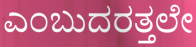
ಎಂಬುದರತ್ತಲೇ